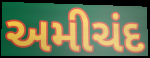
અમીચંદ